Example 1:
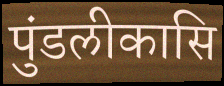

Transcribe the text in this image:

पुंडलीकासि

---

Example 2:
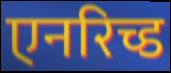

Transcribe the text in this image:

एनरिच्ड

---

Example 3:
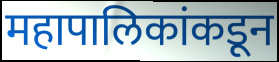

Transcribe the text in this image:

महापालिकांकडून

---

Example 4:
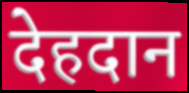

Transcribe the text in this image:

देहदान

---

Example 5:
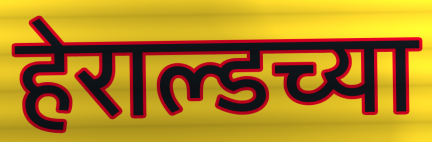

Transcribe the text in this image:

हेराल्डच्या